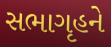
સભાગૃહને